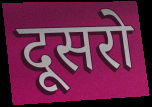
दूसरो